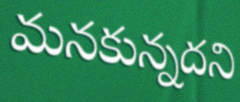
మనకున్నదని